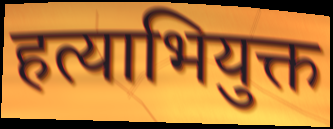
हत्याभियुक्त